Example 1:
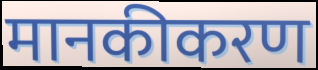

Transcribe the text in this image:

मानकीकरण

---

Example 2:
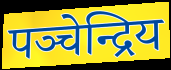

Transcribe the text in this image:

पञ्चेन्द्रिय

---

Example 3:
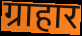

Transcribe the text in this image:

ग्राहार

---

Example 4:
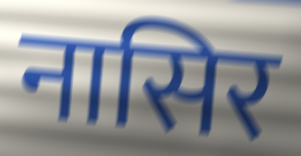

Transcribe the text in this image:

नासिर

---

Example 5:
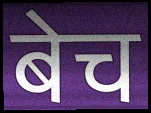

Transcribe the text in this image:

बेच